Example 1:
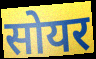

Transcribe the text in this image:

सोयर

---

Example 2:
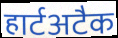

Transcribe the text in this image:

हार्टअटैक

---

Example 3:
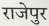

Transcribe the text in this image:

राजेपुर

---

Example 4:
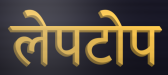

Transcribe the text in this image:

लेपटोप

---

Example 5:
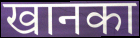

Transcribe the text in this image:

खानका